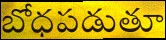
బోధపడుతూ